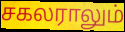
சகலராலும்